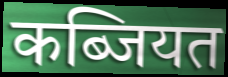
कब्जियत